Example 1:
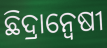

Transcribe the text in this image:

ଛିଦ୍ରାନ୍ୱେଷୀ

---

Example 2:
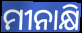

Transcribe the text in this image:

ମୀନାକ୍ଷି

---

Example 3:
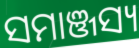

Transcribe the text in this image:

ସମାଞ୍ଜସ୍ୟ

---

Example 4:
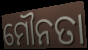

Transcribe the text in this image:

ମୌନତା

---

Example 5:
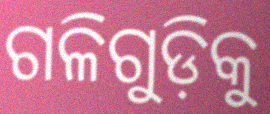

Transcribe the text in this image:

ଗଳିଗୁଡ଼ିକୁ